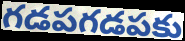
గడపగడపకు